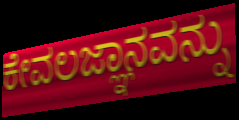
ಕೇವಲಜ್ಞಾನವನ್ನು